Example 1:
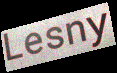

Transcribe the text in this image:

Lesny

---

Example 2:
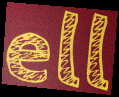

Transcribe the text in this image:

ell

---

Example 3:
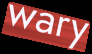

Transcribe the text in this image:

wary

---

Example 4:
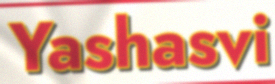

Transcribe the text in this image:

Yashasvi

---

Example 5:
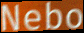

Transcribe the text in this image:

Nebo